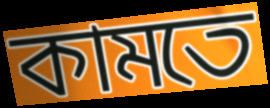
কামতে